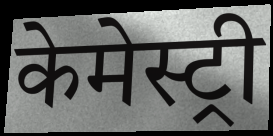
केमेस्ट्री